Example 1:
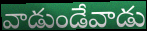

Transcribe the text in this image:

వాడుండేవాడు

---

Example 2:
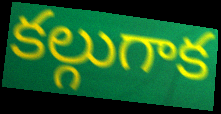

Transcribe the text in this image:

కల్గుగాక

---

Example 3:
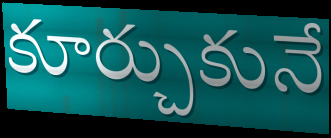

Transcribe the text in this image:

కూర్చుకునే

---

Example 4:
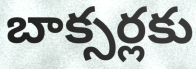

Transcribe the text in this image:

బాక్సర్లకు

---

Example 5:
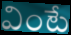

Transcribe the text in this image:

వింటే